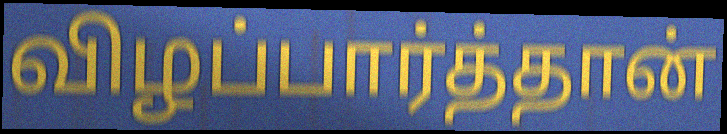
விழப்பார்த்தான்